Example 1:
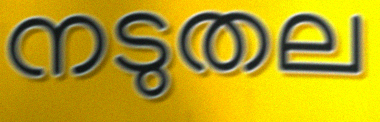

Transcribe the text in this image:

നടുതല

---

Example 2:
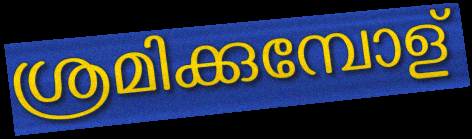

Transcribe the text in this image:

ശ്രമിക്കുമ്പോള്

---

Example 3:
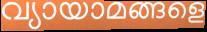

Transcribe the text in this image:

വ്യായാമങ്ങളെ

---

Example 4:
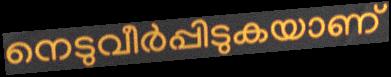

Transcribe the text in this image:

നെടുവീർപ്പിടുകയാണ്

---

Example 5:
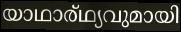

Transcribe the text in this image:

യാഥാര്ഥ്യവുമായി